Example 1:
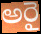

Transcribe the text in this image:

అరై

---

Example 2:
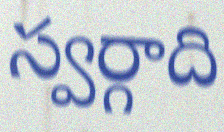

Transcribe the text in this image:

స్వర్గాది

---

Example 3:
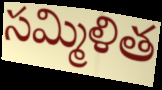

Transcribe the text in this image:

సమ్మిళిత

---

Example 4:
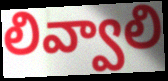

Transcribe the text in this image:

లివ్వాలి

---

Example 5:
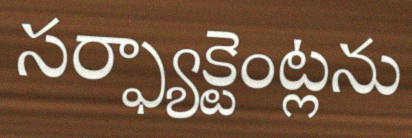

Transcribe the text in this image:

సర్ఫ్యాక్టెంట్లను